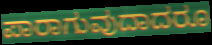
ಪಾರಾಗುವುದಾದರೂ